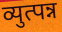
व्युत्पन्न